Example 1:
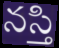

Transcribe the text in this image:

నస్తి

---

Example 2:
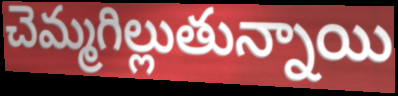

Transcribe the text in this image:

చెమ్మగిల్లుతున్నాయి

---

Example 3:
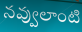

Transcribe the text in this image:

నవ్వులాంటి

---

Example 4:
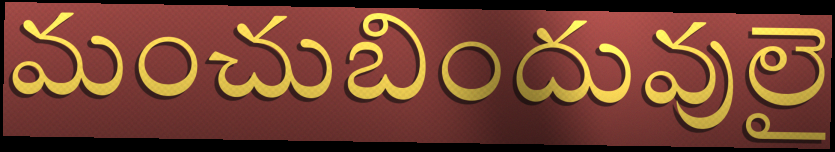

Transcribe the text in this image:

మంచుబిందువులై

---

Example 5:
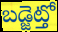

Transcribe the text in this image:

బడ్జెట్తో